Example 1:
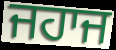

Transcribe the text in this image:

ਜਹਾਜ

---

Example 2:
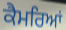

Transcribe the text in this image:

ਕੈਮਰਿਆਂ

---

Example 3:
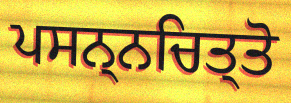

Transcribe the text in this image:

ਪਸਨ੍ਨਚਿਤ੍ਤੋ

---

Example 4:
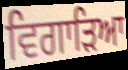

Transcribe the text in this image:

ਵਿਗਾੜਿਆ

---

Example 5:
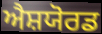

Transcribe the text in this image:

ਐਸ਼ਯੋਰਡ